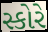
સ્કોરે